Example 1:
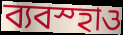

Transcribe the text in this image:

ব্যবস্হাও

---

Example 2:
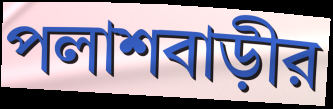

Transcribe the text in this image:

পলাশবাড়ীর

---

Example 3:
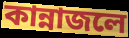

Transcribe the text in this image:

কান্নাজলে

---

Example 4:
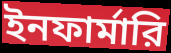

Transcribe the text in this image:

ইনফার্মারি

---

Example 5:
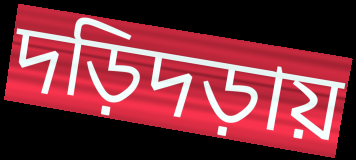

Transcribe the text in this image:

দড়িদড়ায়